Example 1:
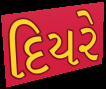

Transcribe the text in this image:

દિયરે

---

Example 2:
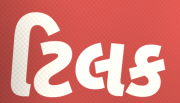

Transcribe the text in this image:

ટિલક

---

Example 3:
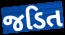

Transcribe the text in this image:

જડિત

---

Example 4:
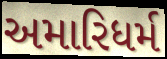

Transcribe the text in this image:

અમારિધર્મ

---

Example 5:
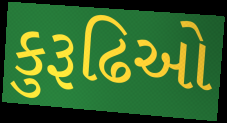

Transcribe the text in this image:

કુરૂઢિઓ